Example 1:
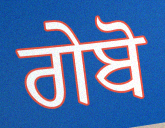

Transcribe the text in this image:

ਗੇਬੋ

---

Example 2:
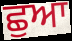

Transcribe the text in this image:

ਛੁਆ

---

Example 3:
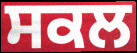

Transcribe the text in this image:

ਸਕਲ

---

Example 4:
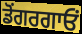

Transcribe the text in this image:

ਡੋਂਗਰਗਾਓਂ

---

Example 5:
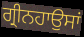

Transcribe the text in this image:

ਗ੍ਰੀਨਹਾਉਸਾਂ